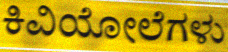
ಕಿವಿಯೋಲೆಗಳು